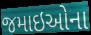
જમાઇઓના